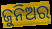
ଜୁନିଅର